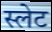
स्लेट